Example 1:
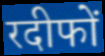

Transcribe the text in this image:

रदीफों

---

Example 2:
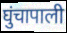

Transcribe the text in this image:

घुंचापाली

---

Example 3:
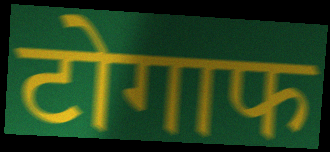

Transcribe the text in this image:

टोगाफ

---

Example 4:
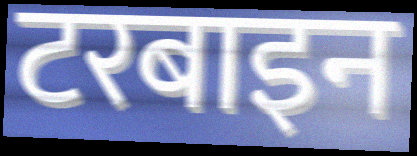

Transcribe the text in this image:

टरबाइन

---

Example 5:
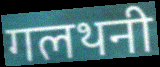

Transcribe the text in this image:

गलथनी